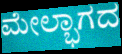
ಮೇಲ್ಭಾಗದ